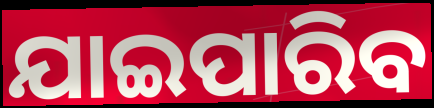
ଯାଇପାରିବ